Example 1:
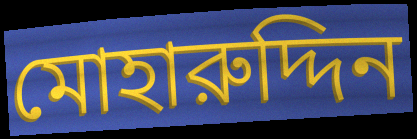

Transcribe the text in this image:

মোহারুদ্দিন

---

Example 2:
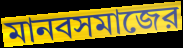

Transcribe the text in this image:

মানবসমাজের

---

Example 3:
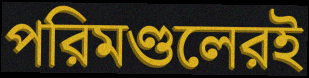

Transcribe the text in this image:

পরিমণ্ডলেরই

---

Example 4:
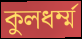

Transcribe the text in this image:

কুলধর্ম্ম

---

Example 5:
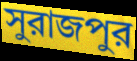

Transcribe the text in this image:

সুরাজপুর